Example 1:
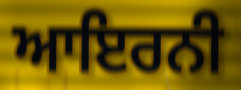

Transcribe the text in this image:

ਆਇਰਨੀ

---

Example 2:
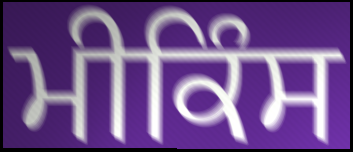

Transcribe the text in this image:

ਮੀਕਿੰਸ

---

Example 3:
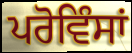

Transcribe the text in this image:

ਪਰੋਵਿੰਸਾਂ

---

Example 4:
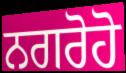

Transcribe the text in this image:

ਨਗਰੋਹੋ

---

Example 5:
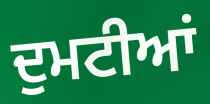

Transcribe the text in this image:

ਦੁਮਟੀਆਂ